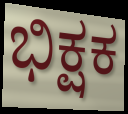
ಭಿಕ್ಷಕ